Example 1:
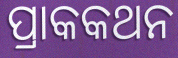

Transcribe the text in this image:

ପ୍ରାକକଥନ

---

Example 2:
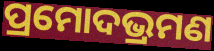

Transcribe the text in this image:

ପ୍ରମୋଦଭ୍ରମଣ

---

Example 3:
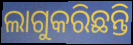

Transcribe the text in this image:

ଲାଗୁକରିଛନ୍ତି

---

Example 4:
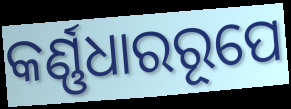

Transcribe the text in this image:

କର୍ଣ୍ଣଧାରରୂପେ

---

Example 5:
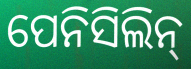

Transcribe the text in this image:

ପେନିସିଲିନ୍